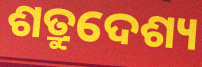
ଶତ୍ରୁଦେଶ୍ୟ